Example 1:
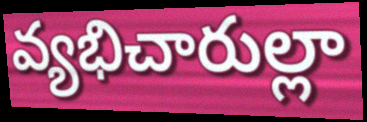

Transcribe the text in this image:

వ్యభిచారుల్లా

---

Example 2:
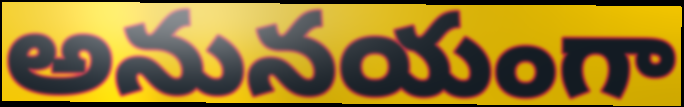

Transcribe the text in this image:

అనునయంగా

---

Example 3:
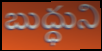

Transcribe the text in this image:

బుద్ధుని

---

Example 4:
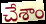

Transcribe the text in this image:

చేశాం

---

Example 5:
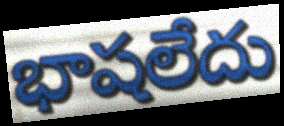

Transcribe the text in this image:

భాషలేదు